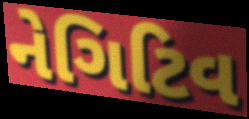
નેગિટિવ